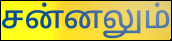
சன்னலும்